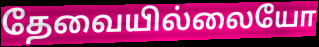
தேவையில்லையோ